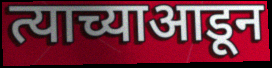
त्याच्याआडून